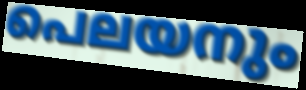
പെലയനും